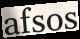
afsos